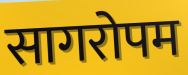
सागरोपम